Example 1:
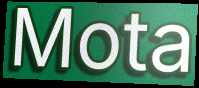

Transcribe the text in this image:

Mota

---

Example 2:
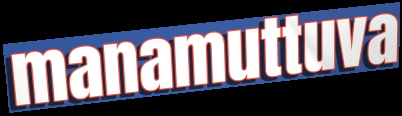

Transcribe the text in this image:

manamuttuva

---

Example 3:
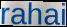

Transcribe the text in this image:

rahai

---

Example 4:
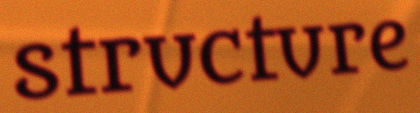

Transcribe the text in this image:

structure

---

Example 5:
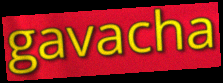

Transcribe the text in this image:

gavacha